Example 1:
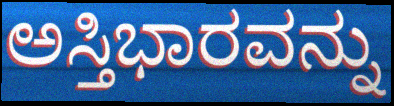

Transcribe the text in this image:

ಅಸ್ತಿಭಾರವನ್ನು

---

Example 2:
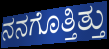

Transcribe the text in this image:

ನನಗೊತ್ತಿತ್ತು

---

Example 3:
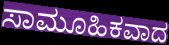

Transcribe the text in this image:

ಸಾಮೂಹಿಕವಾದ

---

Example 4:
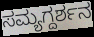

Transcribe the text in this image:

ಸಮ್ಯಗ್ದರ್ಶನ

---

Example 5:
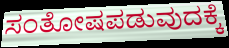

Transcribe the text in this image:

ಸಂತೋಷಪಡುವುದಕ್ಕೆ